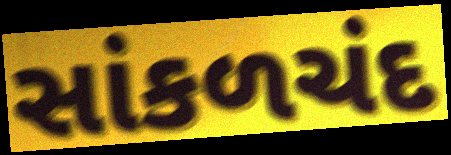
સાંકળચંદ